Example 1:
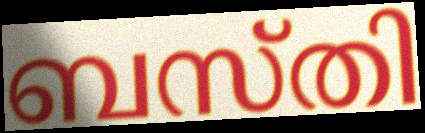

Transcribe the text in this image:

ബസ്തി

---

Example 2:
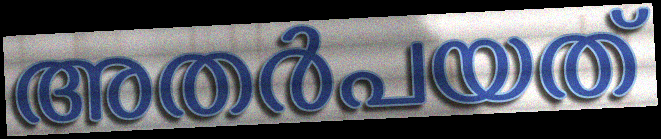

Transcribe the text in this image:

അതർപയത്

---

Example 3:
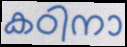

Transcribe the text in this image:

കഠിനാ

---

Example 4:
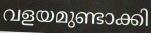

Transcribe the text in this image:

വളയമുണ്ടാക്കി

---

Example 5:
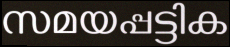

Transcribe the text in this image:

സമയപ്പട്ടിക